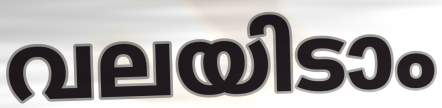
വലയിടാം